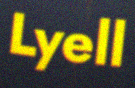
Lyell